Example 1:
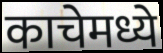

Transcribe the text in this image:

काचेमध्ये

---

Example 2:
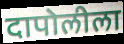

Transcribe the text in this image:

दापोलीला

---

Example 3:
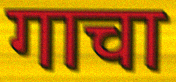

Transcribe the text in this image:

गाचा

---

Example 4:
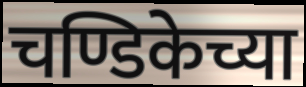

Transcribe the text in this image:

चण्डिकेच्या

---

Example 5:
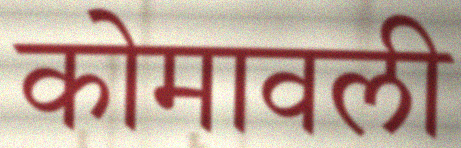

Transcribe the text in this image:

कोमावली